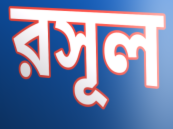
রসূল